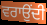
ਵਰਾਉਂਦੀ